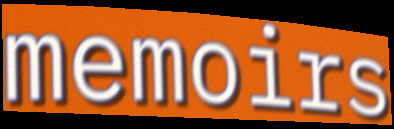
memoirs